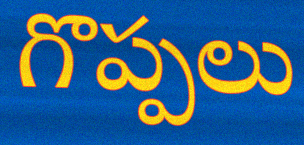
గొప్పలు